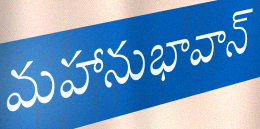
మహానుభావాన్